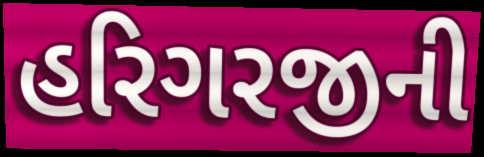
હરિગરજીની